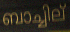
ബാച്ചില്